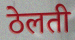
ठेलती